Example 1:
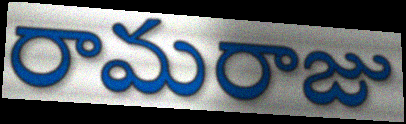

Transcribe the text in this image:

రామరాజు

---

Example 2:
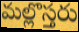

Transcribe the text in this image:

మల్లొస్తరు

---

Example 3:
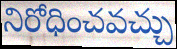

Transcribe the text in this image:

నిరోధించవచ్చు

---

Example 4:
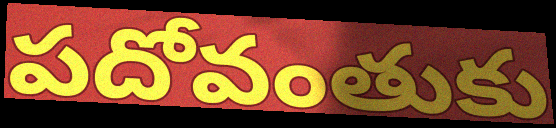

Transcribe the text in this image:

పదోవంతుకు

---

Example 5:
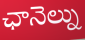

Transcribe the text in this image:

ఛానెల్ను